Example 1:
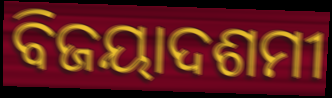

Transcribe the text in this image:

ବିଜୟାଦଶମୀ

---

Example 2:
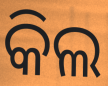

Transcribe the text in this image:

କିଲ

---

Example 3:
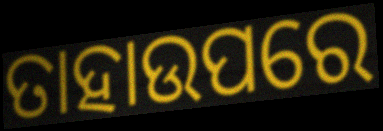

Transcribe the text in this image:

ତାହାଉପରେ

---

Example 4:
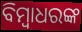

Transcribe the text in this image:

ବିମ୍ବାଧରଙ୍କ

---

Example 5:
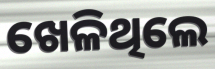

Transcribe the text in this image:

ଖେଳିଥିଲେ